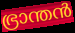
ഭ്രാന്തൻ